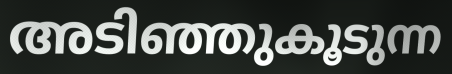
അടിഞ്ഞുകൂടുന്ന